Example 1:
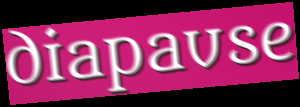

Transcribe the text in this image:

diapause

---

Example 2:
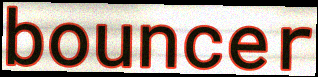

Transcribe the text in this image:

bouncer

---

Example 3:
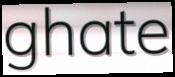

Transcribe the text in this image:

ghate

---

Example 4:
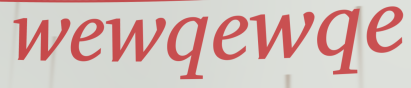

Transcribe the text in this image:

wewqewqe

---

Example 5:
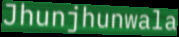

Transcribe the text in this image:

Jhunjhunwala